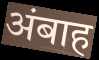
अंबाह